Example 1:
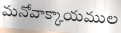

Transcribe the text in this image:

మనోవాక్కాయముల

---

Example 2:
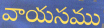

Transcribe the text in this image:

వాయసము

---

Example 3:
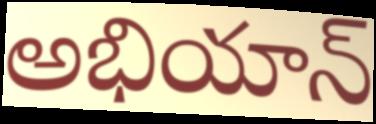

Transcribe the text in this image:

అభియాన్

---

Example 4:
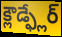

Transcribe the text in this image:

క్లౌడ్ఫ్లేర్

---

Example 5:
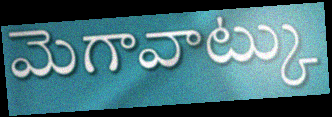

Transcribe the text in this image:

మెగావాట్కు